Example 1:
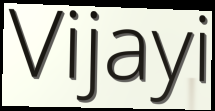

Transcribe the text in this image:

Vijayi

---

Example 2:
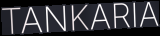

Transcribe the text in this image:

TANKARIA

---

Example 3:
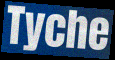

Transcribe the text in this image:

Tyche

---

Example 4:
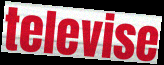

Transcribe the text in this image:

televise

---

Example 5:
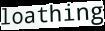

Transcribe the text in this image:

loathing